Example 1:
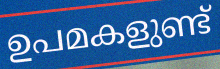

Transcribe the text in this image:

ഉപമകളുണ്ട്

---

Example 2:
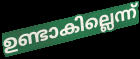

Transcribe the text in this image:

ഉണ്ടാകില്ലെന്ന്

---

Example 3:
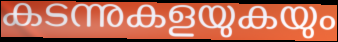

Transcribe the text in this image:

കടന്നുകളയുകയും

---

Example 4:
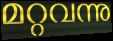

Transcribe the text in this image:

മറ്റവന്നു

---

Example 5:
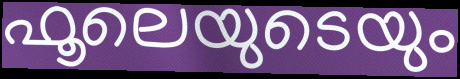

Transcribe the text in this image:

ഫൂലെയുടെയും